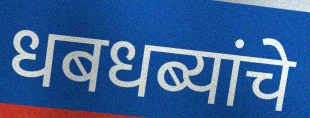
धबधब्यांचे